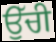
ਉੱਚੀ